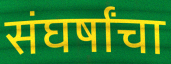
संघर्षांचा